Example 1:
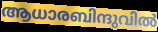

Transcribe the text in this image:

ആധാരബിന്ദുവിൽ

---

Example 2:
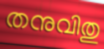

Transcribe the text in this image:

തനുവിതു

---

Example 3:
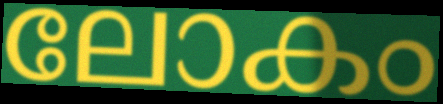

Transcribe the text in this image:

ലോകം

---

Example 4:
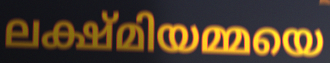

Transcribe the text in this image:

ലക്ഷ്മിയമ്മയെ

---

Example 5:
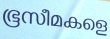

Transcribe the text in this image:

ഭൂസീമകളെ